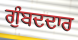
ਗੁੰਬਦਦਾਰ